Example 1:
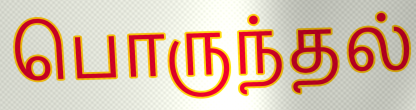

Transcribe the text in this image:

பொருந்தல்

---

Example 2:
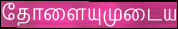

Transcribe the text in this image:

தோளையுமுடைய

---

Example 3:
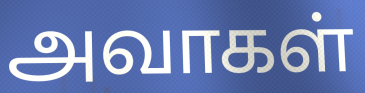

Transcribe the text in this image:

அவாகள்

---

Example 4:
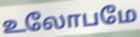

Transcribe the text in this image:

உலோபமே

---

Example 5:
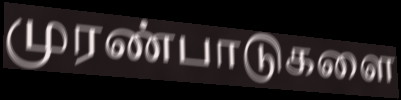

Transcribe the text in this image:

முரண்பாடுகளை